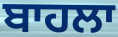
ਬਾਹਲਾ